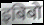
इबिबो